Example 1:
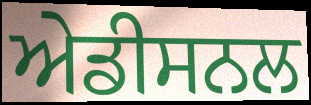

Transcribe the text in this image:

ਅੇਡੀਸਨਲ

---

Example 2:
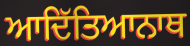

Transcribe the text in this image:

ਆਦਿੱਤਿਆਨਾਥ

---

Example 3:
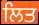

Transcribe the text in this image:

ਲਿਤ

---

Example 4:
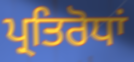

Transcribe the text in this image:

ਪ੍ਰਤਿਰੋਧਾਂ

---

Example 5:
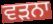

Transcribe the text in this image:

ਵੜਨਾ